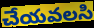
చేయవలసి